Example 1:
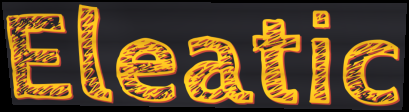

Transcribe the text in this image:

Eleatic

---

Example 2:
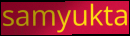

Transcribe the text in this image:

samyukta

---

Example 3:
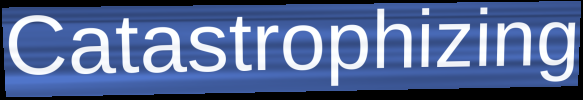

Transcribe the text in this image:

Catastrophizing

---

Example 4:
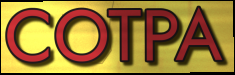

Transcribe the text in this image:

COTPA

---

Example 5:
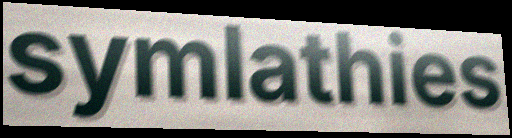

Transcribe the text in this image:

symlathies